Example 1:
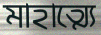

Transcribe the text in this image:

মাহাত্ম্যে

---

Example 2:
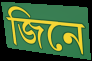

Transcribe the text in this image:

জিনে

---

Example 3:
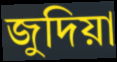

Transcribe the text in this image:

জুদিয়া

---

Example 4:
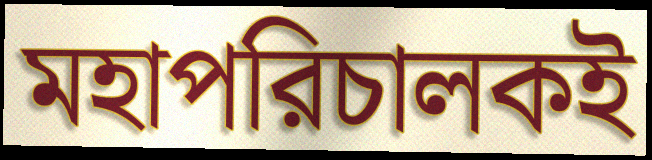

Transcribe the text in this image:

মহাপরিচালকই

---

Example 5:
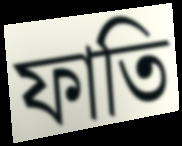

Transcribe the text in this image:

ফাতি